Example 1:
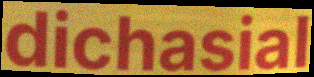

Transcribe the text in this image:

dichasial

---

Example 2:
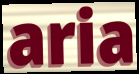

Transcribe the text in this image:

aria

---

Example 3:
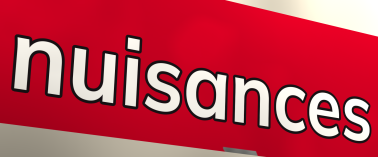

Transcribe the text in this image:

nuisances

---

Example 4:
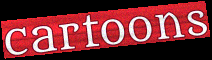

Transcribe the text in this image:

cartoons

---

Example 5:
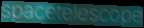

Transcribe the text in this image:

spacetelescope